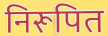
निरूपित